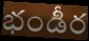
భండీర